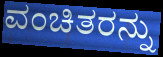
ವಂಚಿತರನ್ನು